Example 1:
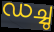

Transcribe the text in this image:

ഡച്ചു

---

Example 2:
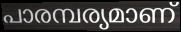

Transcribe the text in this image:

പാരമ്പര്യമാണ്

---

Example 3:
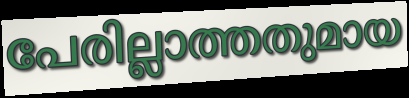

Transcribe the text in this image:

പേരില്ലാത്തതുമായ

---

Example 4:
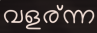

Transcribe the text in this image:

വളര്ന്ന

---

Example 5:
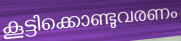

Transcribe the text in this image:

കൂട്ടിക്കൊണ്ടുവരണം